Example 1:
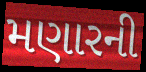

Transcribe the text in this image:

મણારની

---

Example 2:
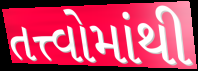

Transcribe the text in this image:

તત્ત્વોમાંથી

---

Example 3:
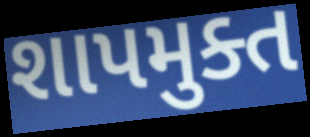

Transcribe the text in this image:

શાપમુક્ત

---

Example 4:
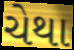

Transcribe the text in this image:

ચેથા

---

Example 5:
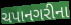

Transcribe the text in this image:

ચપાનગરીના